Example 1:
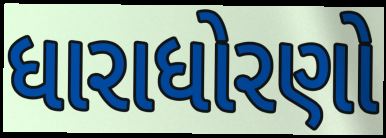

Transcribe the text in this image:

ધારાધોરણો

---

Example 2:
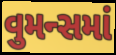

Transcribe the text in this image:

વુમન્સમાં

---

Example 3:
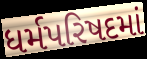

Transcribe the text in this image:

ધર્મપરિષદમાં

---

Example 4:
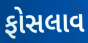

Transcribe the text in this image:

ફોસલાવ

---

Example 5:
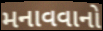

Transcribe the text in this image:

મનાવવાનો